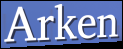
Arken